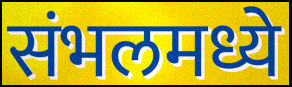
संभलमध्ये